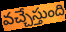
వచ్చేస్తుంది